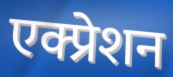
एक्प्रेशन